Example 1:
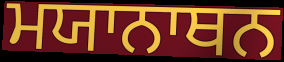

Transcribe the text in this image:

ਮਯਾਨਾਥਨ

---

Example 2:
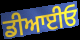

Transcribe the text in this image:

ਡੀਆਈਓ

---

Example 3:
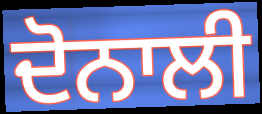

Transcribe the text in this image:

ਦੋਨਾਲੀ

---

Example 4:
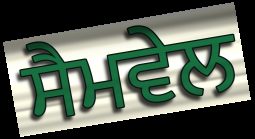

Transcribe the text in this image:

ਸੈਮਵੇਲ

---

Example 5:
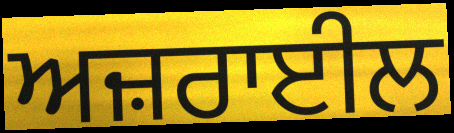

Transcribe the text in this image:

ਅਜ਼ਰਾਈਲ